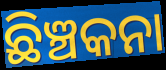
ଛିଞ୍ଚକନା